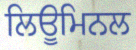
ਲਿਊਮਿਨਲ